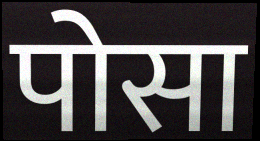
पोसा